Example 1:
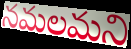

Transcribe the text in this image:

నమలమని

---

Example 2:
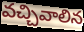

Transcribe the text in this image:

వచ్చివాలిన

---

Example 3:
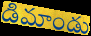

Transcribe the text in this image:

డిమాండు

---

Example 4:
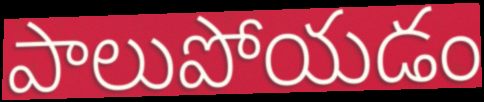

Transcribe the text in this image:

పాలుపోయడం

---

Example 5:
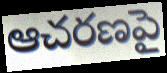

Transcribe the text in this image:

ఆచరణపై